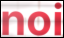
noi